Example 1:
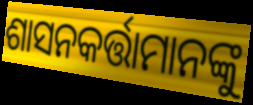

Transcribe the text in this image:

ଶାସନକର୍ତ୍ତାମାନଙ୍କୁ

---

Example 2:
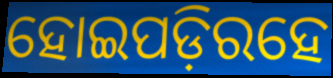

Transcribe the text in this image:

ହୋଇପଡ଼ିରହେ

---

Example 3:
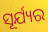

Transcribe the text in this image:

ସୂର୍ଯ୍ୟର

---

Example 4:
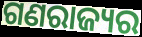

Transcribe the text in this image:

ଗଣରାଜ୍ୟର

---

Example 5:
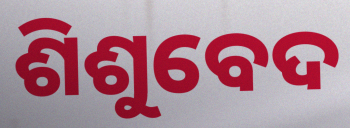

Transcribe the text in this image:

ଶିଶୁବେଦ